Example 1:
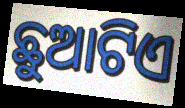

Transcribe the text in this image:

ଛୁଆଟିଏ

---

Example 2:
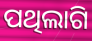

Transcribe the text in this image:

ପଥିଲାଗି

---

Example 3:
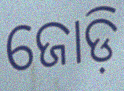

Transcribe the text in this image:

ଜୋଡ଼ି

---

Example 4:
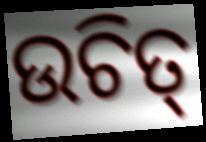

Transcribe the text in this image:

ଉଚିତ୍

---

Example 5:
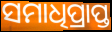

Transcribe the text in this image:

ସମାଧିପ୍ରାପ୍ତ